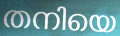
തനിയെ